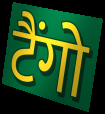
टैंगो